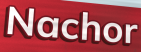
Nachor